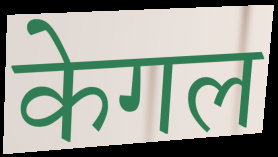
केगल